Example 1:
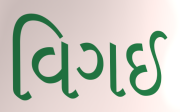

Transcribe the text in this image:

વિગઈ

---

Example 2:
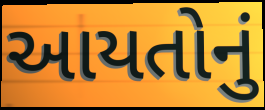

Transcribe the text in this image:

આયતોનું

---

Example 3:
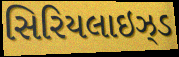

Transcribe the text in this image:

સિરિયલાઇઝ્ડ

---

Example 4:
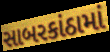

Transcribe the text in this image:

સાબરકાંઠામાં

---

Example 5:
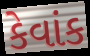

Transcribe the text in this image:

કેવાંક